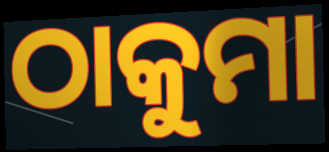
ଠାକୁମା